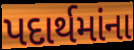
પદાર્થમાંના